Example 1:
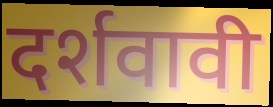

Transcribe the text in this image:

दर्शवावी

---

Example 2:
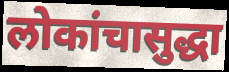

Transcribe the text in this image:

लोकांचासुद्धा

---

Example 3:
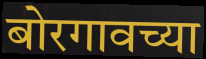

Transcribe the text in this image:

बोरगावच्या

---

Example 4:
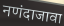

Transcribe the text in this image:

नणंदाजावा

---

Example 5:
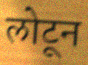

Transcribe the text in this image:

लोटून